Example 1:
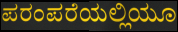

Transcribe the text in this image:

ಪರಂಪರೆಯಲ್ಲಿಯೂ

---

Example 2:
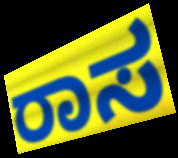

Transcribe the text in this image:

ರಾಸ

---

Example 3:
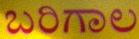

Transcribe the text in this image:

ಬರಿಗಾಲ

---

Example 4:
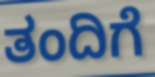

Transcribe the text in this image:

ತಂದಿಗೆ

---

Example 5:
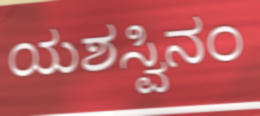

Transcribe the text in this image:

ಯಶಸ್ವಿನಂ